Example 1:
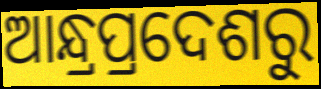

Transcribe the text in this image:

ଆନ୍ଧ୍ରପ୍ରଦେଶରୁ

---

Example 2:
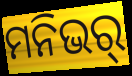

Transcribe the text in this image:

ମନିଭର୍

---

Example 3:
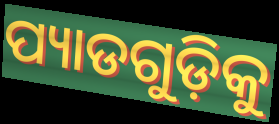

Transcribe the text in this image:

ପ୍ୟାଡଗୁଡ଼ିକୁ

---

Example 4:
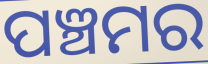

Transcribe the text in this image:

ପଞ୍ଚମର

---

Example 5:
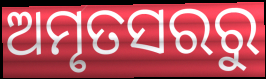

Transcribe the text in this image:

ଅମୃତସରରୁ